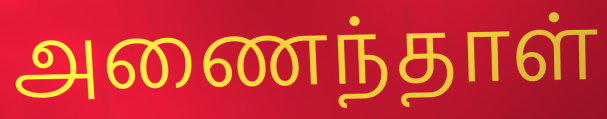
அணைந்தாள்